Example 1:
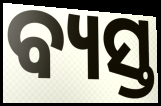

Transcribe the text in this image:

ବ୍ୟସ୍ତ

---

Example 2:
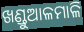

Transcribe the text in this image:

ଖଣ୍ଡୁଆଳମାଳି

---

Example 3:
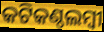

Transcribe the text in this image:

କଟିକଣ୍ଠଲମ୍ବୀ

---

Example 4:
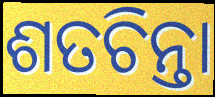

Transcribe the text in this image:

ଶତଚିନ୍ତା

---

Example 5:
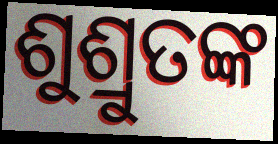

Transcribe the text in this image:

ଶୁଶ୍ରୁତଙ୍କ